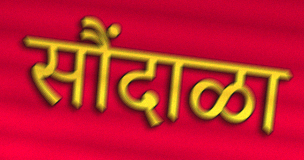
सौंदाळा